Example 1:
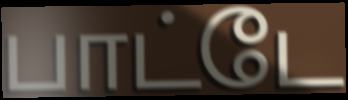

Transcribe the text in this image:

பாட்டே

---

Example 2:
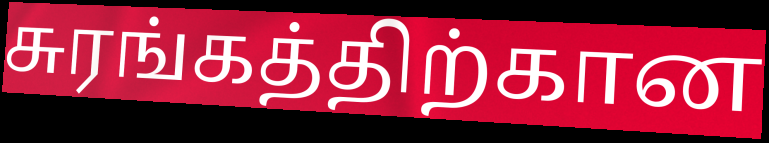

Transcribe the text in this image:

சுரங்கத்திற்கான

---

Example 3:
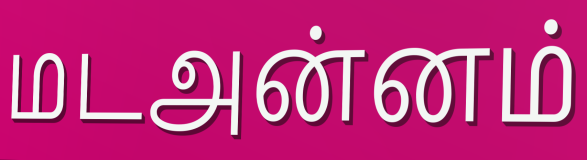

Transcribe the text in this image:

மடஅன்னம்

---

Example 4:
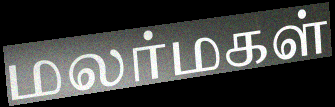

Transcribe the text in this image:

மலர்மகள்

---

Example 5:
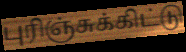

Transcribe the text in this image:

புரிஞ்சுக்கிட்டு